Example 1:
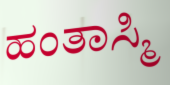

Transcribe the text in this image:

ಹಂತಾಸ್ಮಿ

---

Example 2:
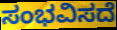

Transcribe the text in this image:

ಸಂಭವಿಸದೆ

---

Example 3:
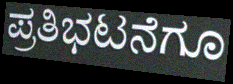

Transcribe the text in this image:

ಪ್ರತಿಭಟನೆಗೂ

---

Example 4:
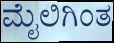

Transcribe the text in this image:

ಮೈಲಿಗಿಂತ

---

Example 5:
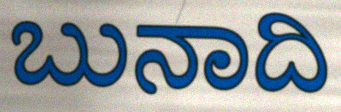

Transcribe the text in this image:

ಬುನಾದಿ